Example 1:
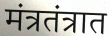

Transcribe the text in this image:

मंत्रतंत्रात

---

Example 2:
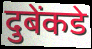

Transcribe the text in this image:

दुबेंकडे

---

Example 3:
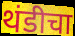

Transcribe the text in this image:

थंडीचा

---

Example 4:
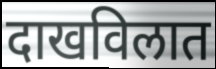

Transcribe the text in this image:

दाखविलात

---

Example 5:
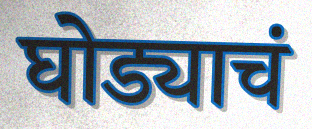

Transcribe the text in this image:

घोड्याचं